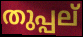
തുപ്പല്